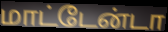
மாட்டேன்டா